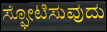
ಸ್ಫೋಟಿಸುವುದು